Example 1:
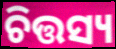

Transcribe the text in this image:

ଚିତ୍ତସ୍ୟ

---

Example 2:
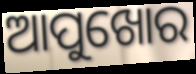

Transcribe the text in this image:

ଆପୁଖୋର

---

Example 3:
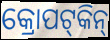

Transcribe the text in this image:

କ୍ରୋପଟ୍‍କିନ୍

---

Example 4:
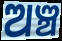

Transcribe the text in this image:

ଅଞ୍ଚ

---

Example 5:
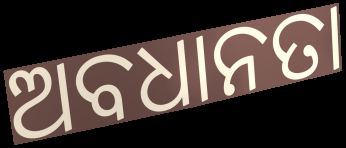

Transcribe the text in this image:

ଅବଧାନତା